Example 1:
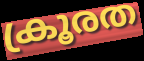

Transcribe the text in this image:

ക്രൂരത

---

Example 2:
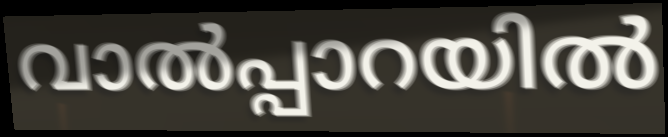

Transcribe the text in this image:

വാൽപ്പാറയിൽ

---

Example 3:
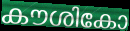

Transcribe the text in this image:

കൗശികോ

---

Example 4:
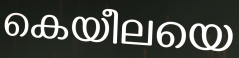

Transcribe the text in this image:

കെയീലയെ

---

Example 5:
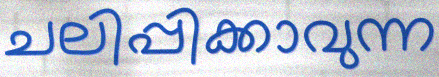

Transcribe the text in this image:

ചലിപ്പിക്കാവുന്ന